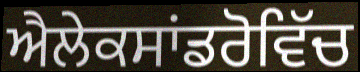
ਐਲੇਕਸਾਂਡਰੋਵਿੱਚ